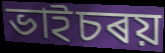
ভাইচৰয়